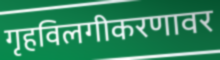
गृहविलगीकरणावर